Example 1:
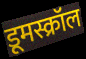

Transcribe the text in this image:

डूमस्क्रॉल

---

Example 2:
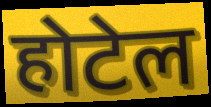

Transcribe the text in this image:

होटेल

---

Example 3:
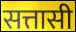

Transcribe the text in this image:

सत्तासी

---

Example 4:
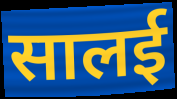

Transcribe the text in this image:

सालई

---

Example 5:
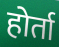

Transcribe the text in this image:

होर्ता